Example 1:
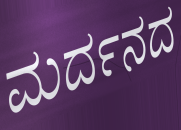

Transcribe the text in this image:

ಮರ್ದನದ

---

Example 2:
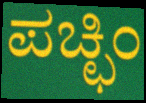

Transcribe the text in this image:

ಪಚ್ಛಿಂ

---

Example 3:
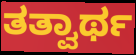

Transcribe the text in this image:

ತತ್ವಾರ್ಥ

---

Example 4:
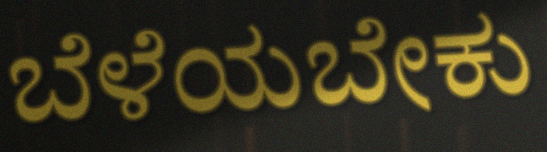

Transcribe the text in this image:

ಬೆಳೆಯಬೇಕು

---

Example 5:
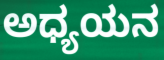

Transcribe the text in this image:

ಅಧ್ಯಯನ